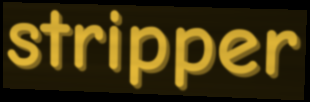
stripper